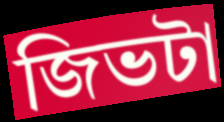
জিভটা